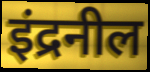
इंद्रनील